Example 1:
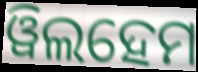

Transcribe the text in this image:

ୱିଲହେମ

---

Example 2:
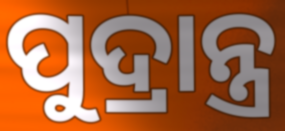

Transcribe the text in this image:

ପୁଦ୍ରାନ୍ତ୍ର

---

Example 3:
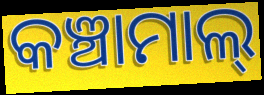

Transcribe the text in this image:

କଞ୍ଚାମାଲ୍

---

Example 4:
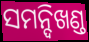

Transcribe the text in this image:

ସମନ୍ଦିଖଣ୍ଡ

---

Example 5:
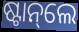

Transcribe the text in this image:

ଷ୍ଟାନ୍‌ଲେ